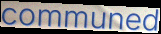
communed